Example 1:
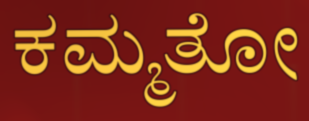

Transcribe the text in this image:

ಕಮ್ಮತೋ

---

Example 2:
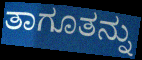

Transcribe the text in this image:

ತಾಗೂತನ್ನು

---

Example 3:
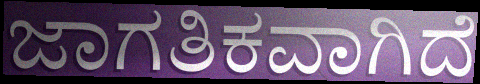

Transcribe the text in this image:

ಜಾಗತಿಕವಾಗಿದೆ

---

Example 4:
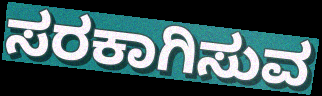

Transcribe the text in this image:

ಸರಕಾಗಿಸುವ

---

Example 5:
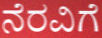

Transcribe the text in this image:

ನೆರವಿಗೆ